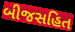
બીજસહિત